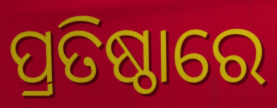
ପ୍ରତିଷ୍ଠାରେ